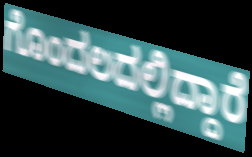
ಗೊಂದಲದಲ್ಲಿದ್ದಾರೆ